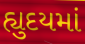
હ્યુદયમાં